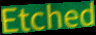
Etched